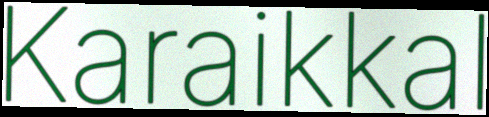
Karaikkal